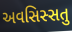
અવસિસ્સતુ